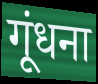
गूंधना